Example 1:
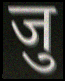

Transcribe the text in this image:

जु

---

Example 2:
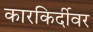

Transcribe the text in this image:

कारकिर्दीवर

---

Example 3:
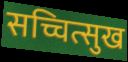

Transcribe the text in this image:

सच्चित्सुख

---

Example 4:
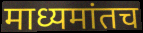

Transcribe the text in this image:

माध्यमांतच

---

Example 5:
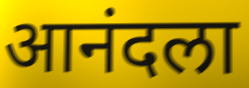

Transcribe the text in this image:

आनंदला